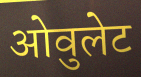
ओवुलेट